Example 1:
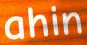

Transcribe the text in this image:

ahin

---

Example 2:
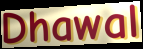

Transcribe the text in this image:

Dhawal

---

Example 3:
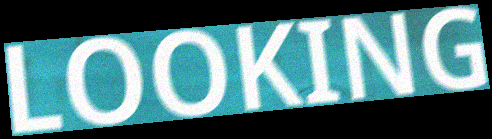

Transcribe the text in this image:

LOOKING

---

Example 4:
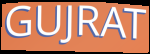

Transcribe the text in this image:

GUJRAT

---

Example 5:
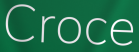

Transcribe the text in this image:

Croce